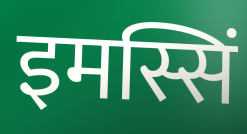
इमस्सिं